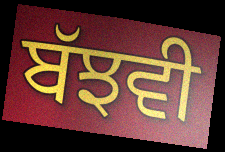
ਬੱਝਵੀ